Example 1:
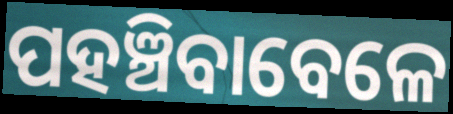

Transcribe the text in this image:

ପହଞ୍ଚିବାବେଳେ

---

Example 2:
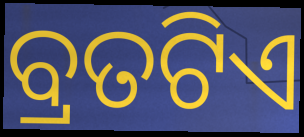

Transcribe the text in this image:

ବ୍ରତଟିଏ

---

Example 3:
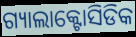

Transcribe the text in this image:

ଗ୍ୟାଲାକ୍ଟୋସିଡିକ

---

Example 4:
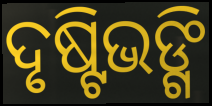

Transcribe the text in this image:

ଦୃଷ୍ଟିଭଙ୍ଗି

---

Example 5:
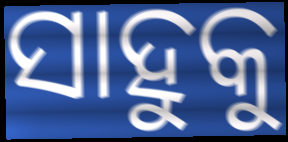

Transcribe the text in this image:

ସାହୁକୁ